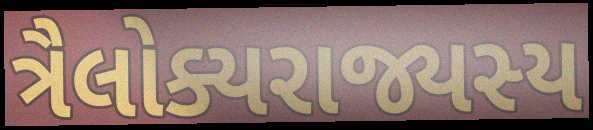
ત્રૈલોક્યરાજ્યસ્ય